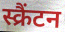
स्क्रैंटन